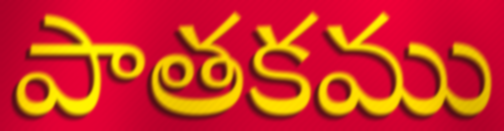
పాతకము